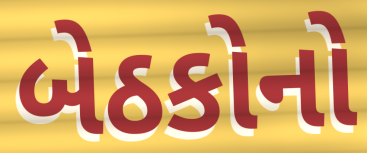
બેઠકોનો